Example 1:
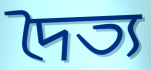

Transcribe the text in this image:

দৈত্য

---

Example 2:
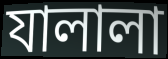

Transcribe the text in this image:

যালালা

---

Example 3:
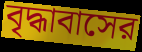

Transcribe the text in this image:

বৃদ্ধাবাসের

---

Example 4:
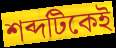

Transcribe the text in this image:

শব্দটিকেই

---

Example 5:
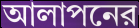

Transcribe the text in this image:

আলাপনের